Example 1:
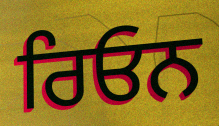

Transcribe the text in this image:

ਰਿਓਨ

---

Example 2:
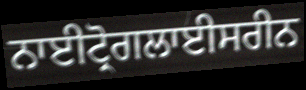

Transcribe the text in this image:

ਨਾਈਟ੍ਰੋਗਲਾਈਸਰੀਨ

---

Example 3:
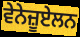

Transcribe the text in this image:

ਵੇਨੇਜ਼ੂਏਲਨ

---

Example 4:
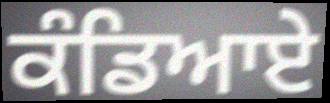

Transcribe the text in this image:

ਕੰਡਿਆਏ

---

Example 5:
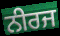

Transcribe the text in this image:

ਨੀਰਜ